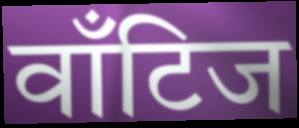
वाँटिज